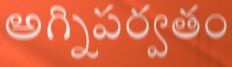
అగ్నిపర్వతం